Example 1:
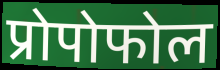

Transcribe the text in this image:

प्रोपोफोल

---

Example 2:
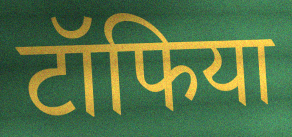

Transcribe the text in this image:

टॉफिया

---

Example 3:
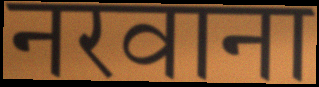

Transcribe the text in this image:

नरवाना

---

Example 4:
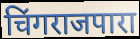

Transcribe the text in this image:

चिंगराजपारा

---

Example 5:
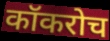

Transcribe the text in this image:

कॉकरोच